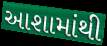
આશામાંથી